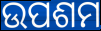
ଉପଶମ